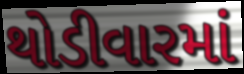
થોડીવારમાં